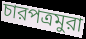
চারপত্রমুরা